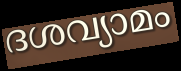
ദശവ്യാമം